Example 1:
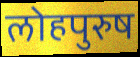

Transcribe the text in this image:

लोहपुरुष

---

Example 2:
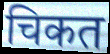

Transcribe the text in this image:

चिकत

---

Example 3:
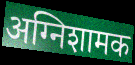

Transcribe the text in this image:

अग्निशामक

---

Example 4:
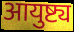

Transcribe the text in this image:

आयुष्ट्य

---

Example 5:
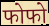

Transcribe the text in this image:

फोफो